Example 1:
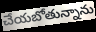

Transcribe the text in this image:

చేయబోతున్నాను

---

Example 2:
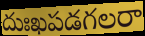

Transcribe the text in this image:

దుఃఖపడగలరా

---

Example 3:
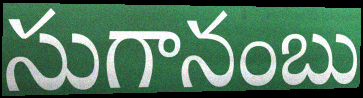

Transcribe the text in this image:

సుగానంబు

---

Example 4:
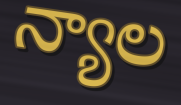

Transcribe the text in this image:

న్యాల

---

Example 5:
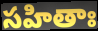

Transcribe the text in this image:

సహితాః